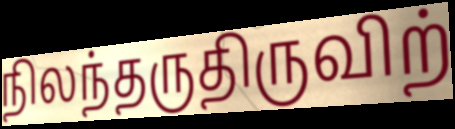
நிலந்தருதிருவிற்